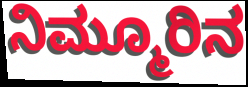
ನಿಮ್ಮೂರಿನ